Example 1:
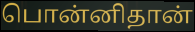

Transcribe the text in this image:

பொன்னிதான்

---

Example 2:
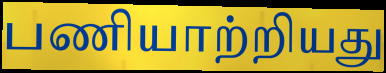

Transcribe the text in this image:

பணியாற்றியது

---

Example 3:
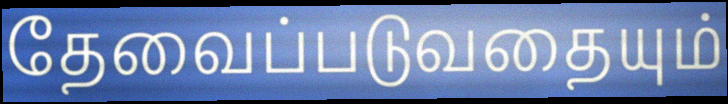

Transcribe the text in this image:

தேவைப்படுவதையும்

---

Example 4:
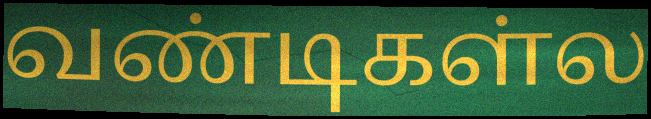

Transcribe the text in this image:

வண்டிகள்ல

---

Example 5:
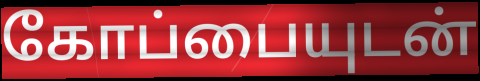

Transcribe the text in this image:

கோப்பையுடன்